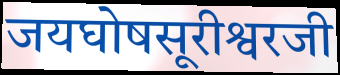
जयघोषसूरीश्वरजी